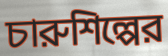
চারুশিল্পের